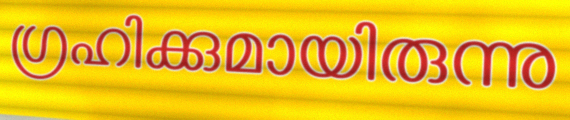
ഗ്രഹിക്കുമായിരുന്നു